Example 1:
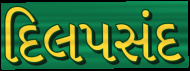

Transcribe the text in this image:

દિલપસંદ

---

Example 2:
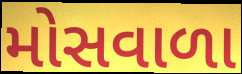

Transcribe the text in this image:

મોસવાળા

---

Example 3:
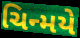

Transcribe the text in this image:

ચિન્મયે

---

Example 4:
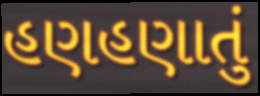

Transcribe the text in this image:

હણહણાતું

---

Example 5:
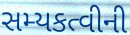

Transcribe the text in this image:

સમ્યકત્વીની